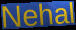
Nehal